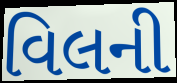
વિલની